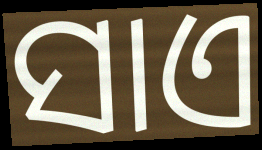
ସାଏ